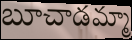
బూచాడమ్మా